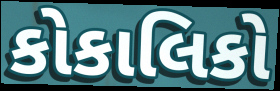
કોકાલિકો